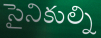
సైనికుల్ని